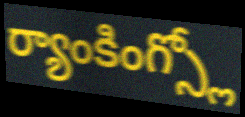
ర్యాంకింగ్స్లో